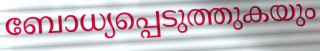
ബോധ്യപ്പെടുത്തുകയും